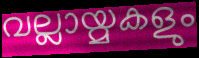
വല്ലായ്മകളും